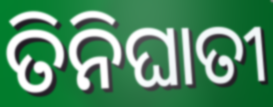
ତିନିଘାତୀ